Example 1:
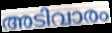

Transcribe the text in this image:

അടിവാരം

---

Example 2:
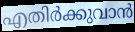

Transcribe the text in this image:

എതിർക്കുവാൻ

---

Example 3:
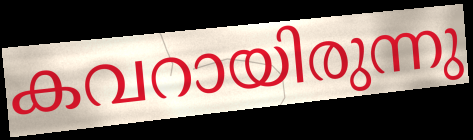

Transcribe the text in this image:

കവറായിരുന്നു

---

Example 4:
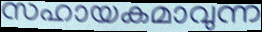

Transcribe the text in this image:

സഹായകമാവുന്ന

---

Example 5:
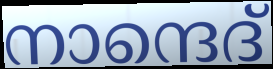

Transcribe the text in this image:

നാന്ദെദ്